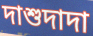
দাশুদাদা